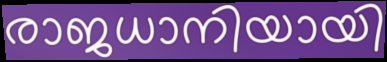
രാജധാനിയായി